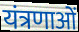
यंत्रणाओं